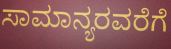
ಸಾಮಾನ್ಯರವರೆಗೆ